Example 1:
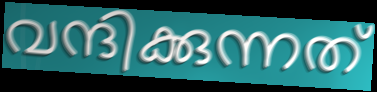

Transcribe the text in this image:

വന്ദിക്കുന്നത്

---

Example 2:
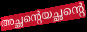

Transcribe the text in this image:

അച്ഛന്റെയച്ഛന്റെ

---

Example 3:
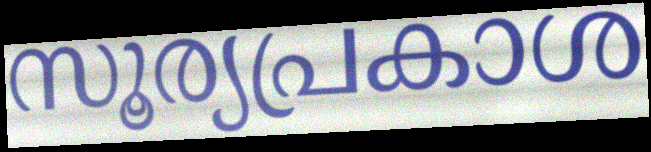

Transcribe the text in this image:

സൂര്യപ്രകാശ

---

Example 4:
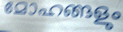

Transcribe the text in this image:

മോഹങ്ങളും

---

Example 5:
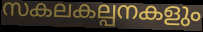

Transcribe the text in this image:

സകലകല്പനകളും